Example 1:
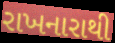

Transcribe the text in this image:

રાખનારાથી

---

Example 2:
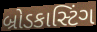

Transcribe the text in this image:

બ્રોડકાસ્ટિંગ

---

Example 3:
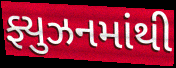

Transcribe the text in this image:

ફ્યુઝનમાંથી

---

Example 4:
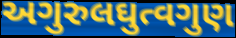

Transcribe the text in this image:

અગુરુલઘુત્વગુણ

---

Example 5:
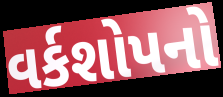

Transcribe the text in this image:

વર્કશોપનો